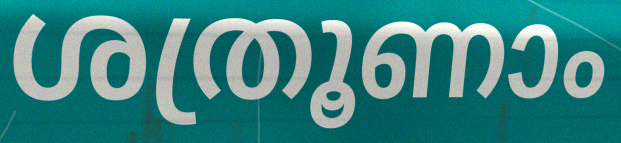
ശത്രൂണാം